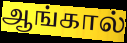
ஆங்கால்